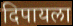
दिपायला